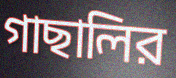
গাছালির